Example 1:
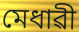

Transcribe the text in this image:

মেধাৱী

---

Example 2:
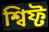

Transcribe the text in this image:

শ্বিফ্ট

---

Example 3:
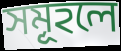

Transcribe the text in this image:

সমূহলে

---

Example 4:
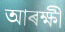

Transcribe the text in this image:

আৰক্ষী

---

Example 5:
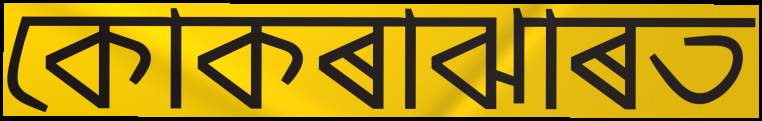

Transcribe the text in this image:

কোকৰাঝাৰত